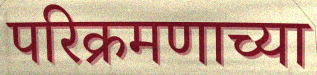
परिक्रमणाच्या